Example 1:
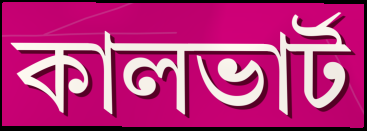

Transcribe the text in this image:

কালভার্ট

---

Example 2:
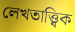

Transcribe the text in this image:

লেখতাত্ত্বিক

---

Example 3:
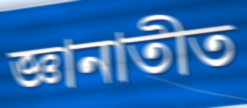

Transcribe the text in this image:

জ্ঞানাতীত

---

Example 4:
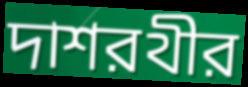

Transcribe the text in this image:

দাশরথীর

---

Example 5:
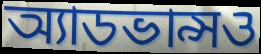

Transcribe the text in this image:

অ্যাডভান্সও